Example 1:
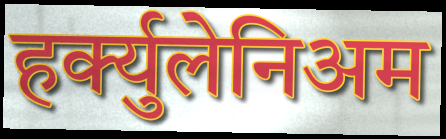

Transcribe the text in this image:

हर्क्युलेनिअम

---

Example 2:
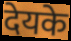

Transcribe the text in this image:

देयके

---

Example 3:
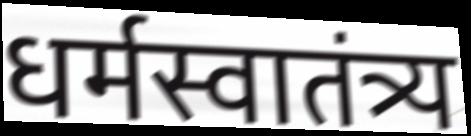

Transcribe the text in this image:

धर्मस्वातंत्र्य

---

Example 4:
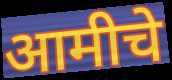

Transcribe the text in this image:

आमीचे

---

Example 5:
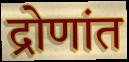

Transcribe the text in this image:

द्रोणांत